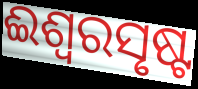
ଈଶ୍ୱରସୃଷ୍ଟ